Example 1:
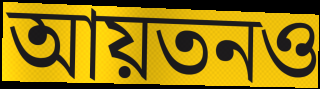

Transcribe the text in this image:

আয়তনও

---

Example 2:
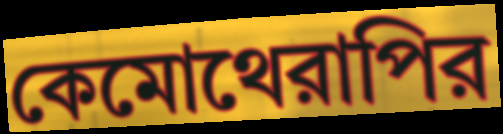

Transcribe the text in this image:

কেমোথেরাপির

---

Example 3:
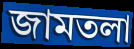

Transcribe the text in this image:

জামতলা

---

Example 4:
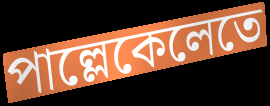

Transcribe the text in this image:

পাল্লেকেলেতে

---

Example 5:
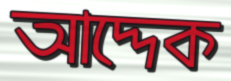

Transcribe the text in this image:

আদ্দেক